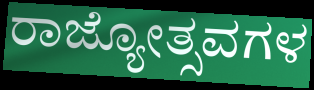
ರಾಜ್ಯೋತ್ಸವಗಳ